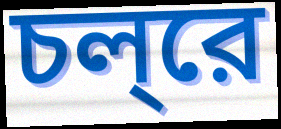
চল্‌রে